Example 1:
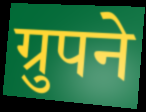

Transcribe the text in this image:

ग्रुपने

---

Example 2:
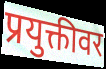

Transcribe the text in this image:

प्रयुक्तीवर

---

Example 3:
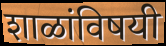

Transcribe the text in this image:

शाळांविषयी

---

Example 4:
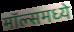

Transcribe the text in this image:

मॉल्समध्ये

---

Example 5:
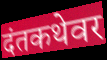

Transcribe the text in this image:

दंतकथेवर